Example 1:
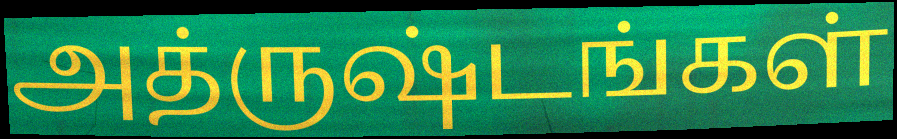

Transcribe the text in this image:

அத்ருஷ்டங்கள்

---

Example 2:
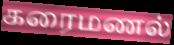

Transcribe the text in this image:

கரைமணல்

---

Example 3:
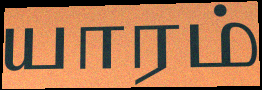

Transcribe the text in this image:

யாரம்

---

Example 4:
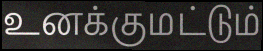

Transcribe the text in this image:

உனக்குமட்டும்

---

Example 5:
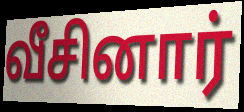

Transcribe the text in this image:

வீசினார்